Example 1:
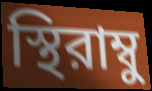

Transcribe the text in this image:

স্থিরাম্বু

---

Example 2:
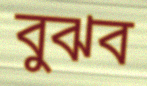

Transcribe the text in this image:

বুঝব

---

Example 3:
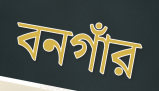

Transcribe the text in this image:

বনগাঁর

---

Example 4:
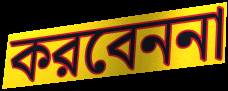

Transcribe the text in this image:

করবেননা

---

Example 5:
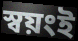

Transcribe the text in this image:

স্বয়ংই